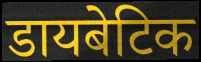
डायबेटिक